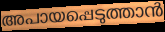
അപായപ്പെടുത്താൻ